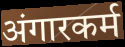
अंगारकर्म